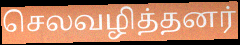
செலவழித்தனர்